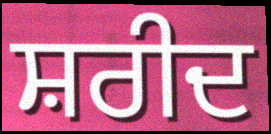
ਸ਼ਰੀਦ